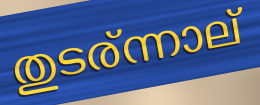
തുടര്ന്നാല്